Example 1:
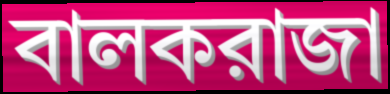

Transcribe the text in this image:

বালকরাজা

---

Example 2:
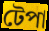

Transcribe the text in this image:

টেপা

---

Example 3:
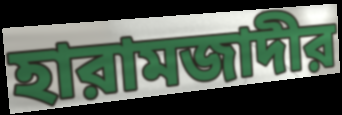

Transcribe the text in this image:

হারামজাদীর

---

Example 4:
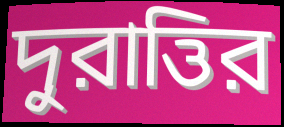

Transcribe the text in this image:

দুরাত্তির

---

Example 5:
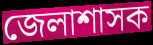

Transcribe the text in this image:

জেলাশাসক